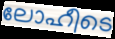
ലോഹീടെ